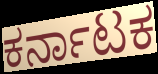
ಕರ್ನಾಟಕ